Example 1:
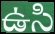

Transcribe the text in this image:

ఉసి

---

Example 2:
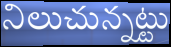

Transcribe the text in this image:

నిలుచున్నట్టు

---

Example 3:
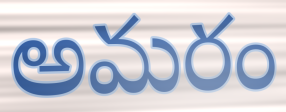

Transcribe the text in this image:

అమరం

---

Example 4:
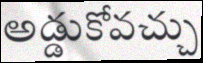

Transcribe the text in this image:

అడ్డుకోవచ్చు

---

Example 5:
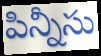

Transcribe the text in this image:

పిన్నీసు